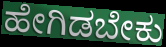
ಹೇಗಿಡಬೇಕು